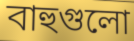
বাহুগুলো